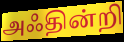
அஃதின்றி